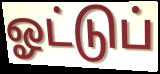
ஓட்டுப்